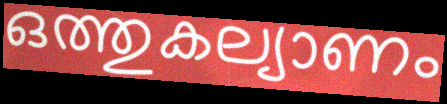
ഒത്തുകല്യാണം